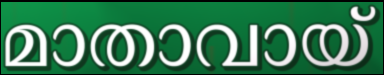
മാതാവായ്